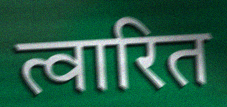
त्वारित